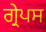
ਗ੍ਰੇਪਸ